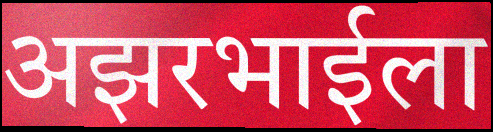
अझरभाईला